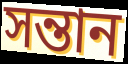
সন্তান